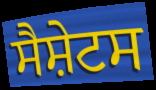
ਸੈਸ਼ੇਟਸ